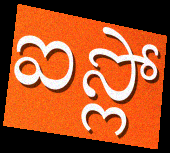
ఐస్లో